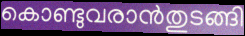
കൊണ്ടുവരാൻതുടങ്ങി